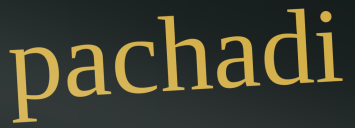
pachadi